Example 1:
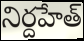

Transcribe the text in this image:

నిర్దహేత్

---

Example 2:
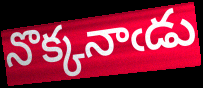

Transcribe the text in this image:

నొక్కనాఁడు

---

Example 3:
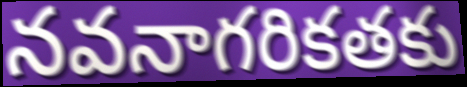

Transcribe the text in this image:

నవనాగరికతకు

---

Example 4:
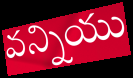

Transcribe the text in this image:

వన్నియు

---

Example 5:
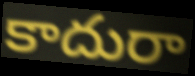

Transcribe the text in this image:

కాదురా